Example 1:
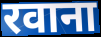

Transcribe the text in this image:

रवाना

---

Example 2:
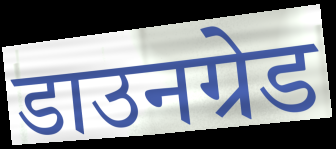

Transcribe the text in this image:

डाउनग्रेड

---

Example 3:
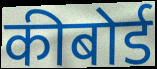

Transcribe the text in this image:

कीबोर्ड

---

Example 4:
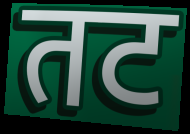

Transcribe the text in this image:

तट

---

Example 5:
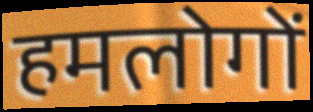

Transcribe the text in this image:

हमलोगों